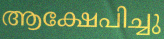
ആക്ഷേപിച്ചു